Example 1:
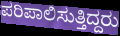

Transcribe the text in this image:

ಪರಿಪಾಲಿಸುತ್ತಿದ್ದರು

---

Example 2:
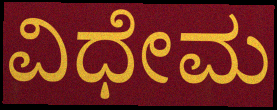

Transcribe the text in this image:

ವಿಧೇಮ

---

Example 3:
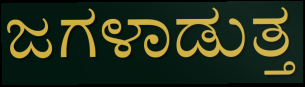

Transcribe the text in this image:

ಜಗಳಾಡುತ್ತ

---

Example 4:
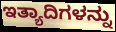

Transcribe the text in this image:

ಇತ್ಯಾದಿಗಳನ್ನು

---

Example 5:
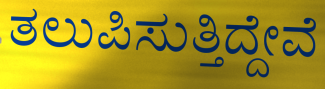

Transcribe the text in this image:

ತಲುಪಿಸುತ್ತಿದ್ದೇವೆ